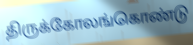
திருக்கோலங்கொண்டு